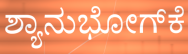
ಶ್ಯಾನುಭೋಗ್‌ಕೆ